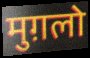
मुग़लो